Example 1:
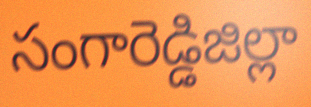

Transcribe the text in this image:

సంగారెడ్డిజిల్లా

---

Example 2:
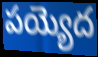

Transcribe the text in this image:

పయ్యెద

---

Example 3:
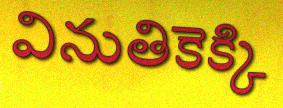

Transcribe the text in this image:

వినుతికెక్కి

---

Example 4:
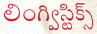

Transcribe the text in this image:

లింగ్విస్టిక్స్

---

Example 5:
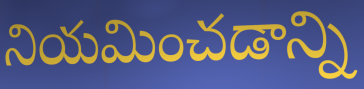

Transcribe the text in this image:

నియమించడాన్ని